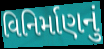
વિનિર્માણનું